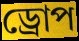
ড্ৰোপ